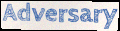
Adversary